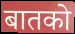
बातको